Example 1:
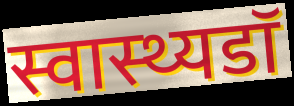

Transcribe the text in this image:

स्वास्थ्यडॉ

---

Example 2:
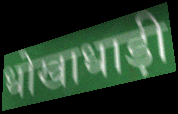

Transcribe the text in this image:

धोखाधाड़ी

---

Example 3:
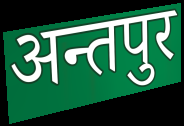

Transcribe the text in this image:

अन्तपुर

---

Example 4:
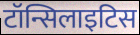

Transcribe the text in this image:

टॉन्सिलाइटिस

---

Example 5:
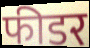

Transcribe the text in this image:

फीडर